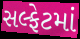
સલ્ફેટમાં